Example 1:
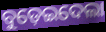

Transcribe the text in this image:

ବୁଡ଼େଇଦେଲା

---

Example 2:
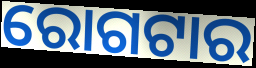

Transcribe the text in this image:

ରୋଗଟାର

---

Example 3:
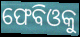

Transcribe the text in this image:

ଫେବିଓକୁ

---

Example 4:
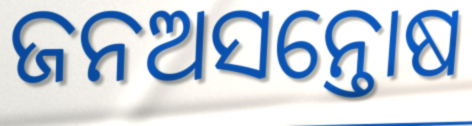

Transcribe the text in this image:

ଜନଅସନ୍ତୋଷ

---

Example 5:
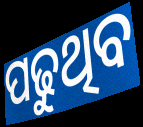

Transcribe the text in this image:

ପଢୁଥିବ